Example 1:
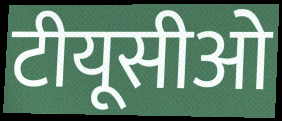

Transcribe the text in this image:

टीयूसीओ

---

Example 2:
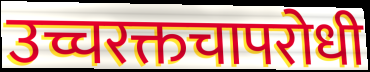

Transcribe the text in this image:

उच्चरक्तचापरोधी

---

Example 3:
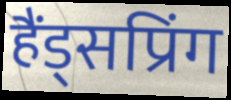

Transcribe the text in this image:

हैंड्सप्रिंग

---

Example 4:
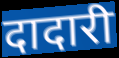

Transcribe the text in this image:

दादारी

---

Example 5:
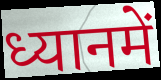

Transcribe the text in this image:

ध्यानमें